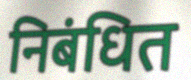
निबंधित